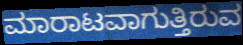
ಮಾರಾಟವಾಗುತ್ತಿರುವ